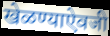
खेळण्याऐवजी